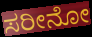
ಸರೀನೋ